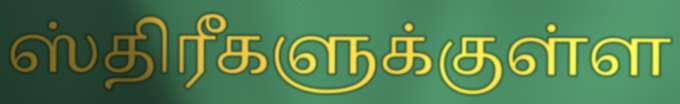
ஸ்திரீகளுக்குள்ள